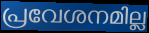
പ്രവേശനമില്ല